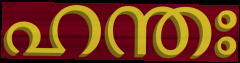
ഹന്തഃ